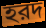
হরদ